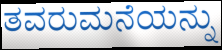
ತವರುಮನೆಯನ್ನು